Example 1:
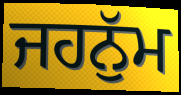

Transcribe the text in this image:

ਜਹਨੁੱਮ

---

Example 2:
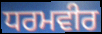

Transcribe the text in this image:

ਧਰਮਵੀਰ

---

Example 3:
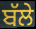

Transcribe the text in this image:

ਬੱਲੇ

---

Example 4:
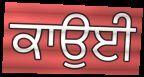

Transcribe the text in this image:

ਕਾਉਈ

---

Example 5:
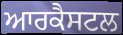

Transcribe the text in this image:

ਆਰਕੈਸਟਲ